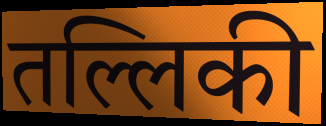
तल्लिकी